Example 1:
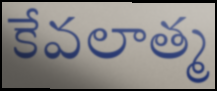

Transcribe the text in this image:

కేవలాత్మ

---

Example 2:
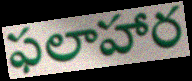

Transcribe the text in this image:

ఫలాహార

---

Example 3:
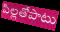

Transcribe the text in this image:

పిల్లతోపాటు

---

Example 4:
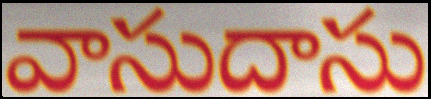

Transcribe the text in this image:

వాసుదాసు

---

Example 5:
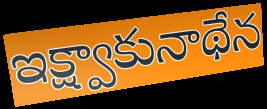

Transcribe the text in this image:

ఇక్ష్వాకునాథేన